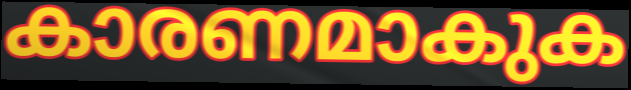
കാരണമാകുക